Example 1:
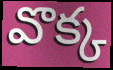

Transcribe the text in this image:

వొక్క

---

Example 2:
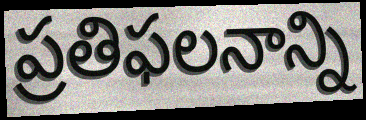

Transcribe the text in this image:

ప్రతిఫలనాన్ని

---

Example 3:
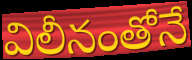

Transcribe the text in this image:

విలీనంతోనే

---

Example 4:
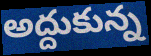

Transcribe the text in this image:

అద్దుకున్న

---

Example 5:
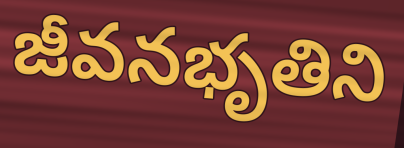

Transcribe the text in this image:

జీవనభృతిని